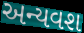
અન્યવશ